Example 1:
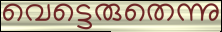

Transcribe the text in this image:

വെട്ടെരുതെന്നു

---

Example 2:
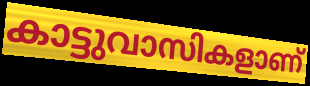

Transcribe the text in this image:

കാട്ടുവാസികളാണ്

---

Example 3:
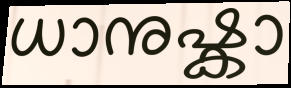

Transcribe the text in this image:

ധാനുഷ്കാ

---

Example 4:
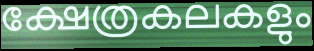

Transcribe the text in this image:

ക്ഷേത്രകലകളും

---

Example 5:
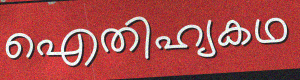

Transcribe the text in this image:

ഐതിഹ്യകഥ